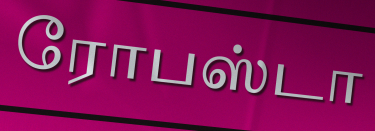
ரோபஸ்டா